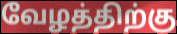
வேழத்திற்கு